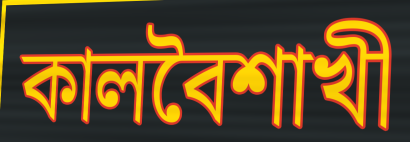
কালবৈশাখী